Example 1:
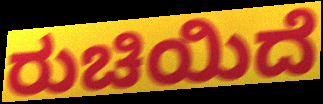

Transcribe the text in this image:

ರುಚಿಯಿದೆ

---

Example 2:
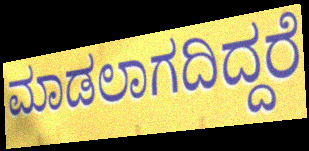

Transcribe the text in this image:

ಮಾಡಲಾಗದಿದ್ದರೆ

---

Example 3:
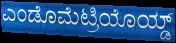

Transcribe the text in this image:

ಎಂಡೊಮೆಟ್ರಿಯೊಯ್ಡ್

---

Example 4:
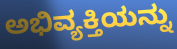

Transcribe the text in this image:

ಅಭಿವ್ಯಕ್ತಿಯನ್ನು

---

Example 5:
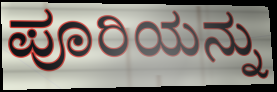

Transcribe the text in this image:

ಪೂರಿಯನ್ನು